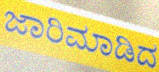
ಜಾರಿಮಾಡಿದ